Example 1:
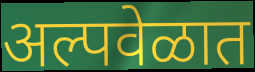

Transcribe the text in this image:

अल्पवेळात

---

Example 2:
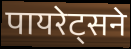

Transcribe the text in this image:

पायरेट्सने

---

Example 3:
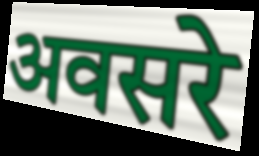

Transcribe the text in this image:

अवसरे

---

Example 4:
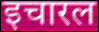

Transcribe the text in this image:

इचारल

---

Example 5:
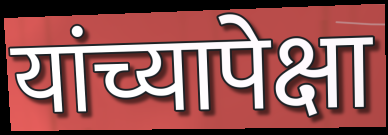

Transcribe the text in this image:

यांच्यापेक्षा